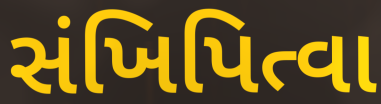
સંખિપિત્વા